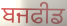
ਬਜਫੀਡ